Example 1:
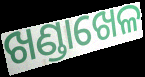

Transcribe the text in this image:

ଖଣ୍ଡାଖେଳ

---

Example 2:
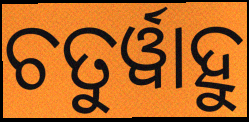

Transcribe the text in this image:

ଚତୁର୍ୱାହୁ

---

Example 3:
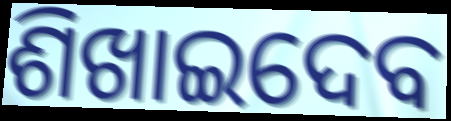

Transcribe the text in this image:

ଶିଖାଇଦେବ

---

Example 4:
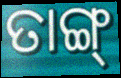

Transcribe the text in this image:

ତାଙ୍ଗ୍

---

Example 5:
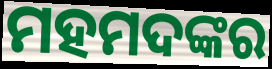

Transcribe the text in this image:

ମହମଦଙ୍କର